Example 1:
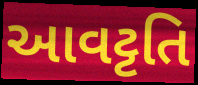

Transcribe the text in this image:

આવટ્ટતિ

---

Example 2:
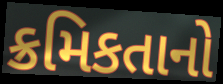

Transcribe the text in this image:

ક્રમિકતાનો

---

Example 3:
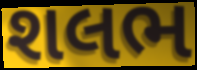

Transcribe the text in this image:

શલભ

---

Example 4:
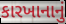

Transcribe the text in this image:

કારખાનાનું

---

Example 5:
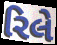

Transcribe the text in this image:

રિલે